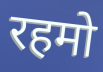
रहमो